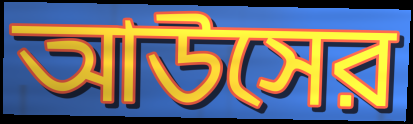
আউসের